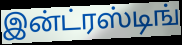
இன்ட்ரஸ்டிங்